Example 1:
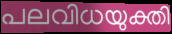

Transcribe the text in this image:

പലവിധയുക്തി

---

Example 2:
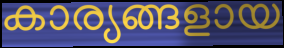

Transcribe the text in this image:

കാര്യങ്ങളായ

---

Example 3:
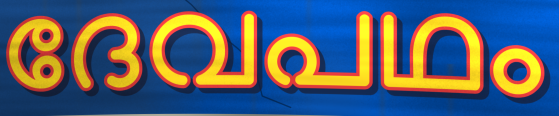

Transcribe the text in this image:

ദേവപഥം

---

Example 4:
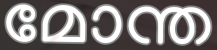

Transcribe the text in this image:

മോന്ത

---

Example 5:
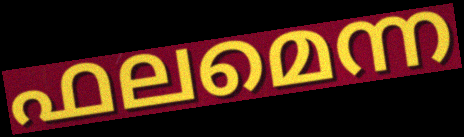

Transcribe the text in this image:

ഫലമെന്ന